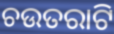
ଚଉତରାଟି